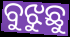
ବୁଝୁଛୁ